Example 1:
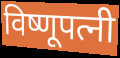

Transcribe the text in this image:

विष्णूपत्नी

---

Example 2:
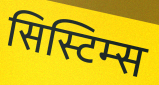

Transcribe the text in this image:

सिस्टिम्स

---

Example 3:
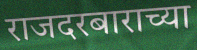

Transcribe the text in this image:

राजदरबाराच्या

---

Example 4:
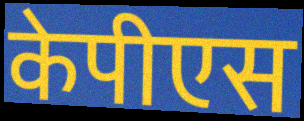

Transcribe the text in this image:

केपीएस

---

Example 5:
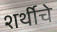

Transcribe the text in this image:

शर्थीचे